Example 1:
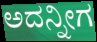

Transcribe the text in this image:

ಅದನ್ನೀಗ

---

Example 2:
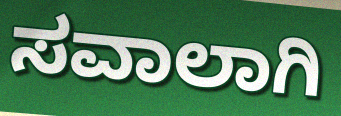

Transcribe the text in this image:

ಸವಾಲಾಗಿ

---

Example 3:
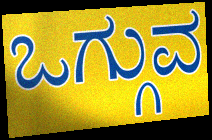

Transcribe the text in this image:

ಒಗ್ಗುವ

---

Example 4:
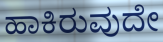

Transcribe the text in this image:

ಹಾಕಿರುವುದೇ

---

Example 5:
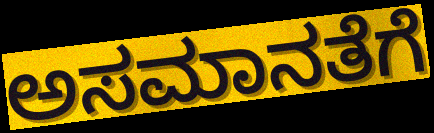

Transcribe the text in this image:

ಅಸಮಾನತೆಗೆ